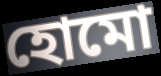
হোমো